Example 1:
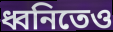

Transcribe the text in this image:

ধ্বনিতেও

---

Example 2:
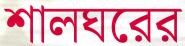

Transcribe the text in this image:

শালঘরের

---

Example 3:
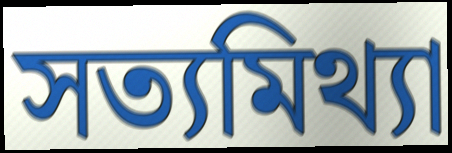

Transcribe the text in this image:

সত্যমিথ্যা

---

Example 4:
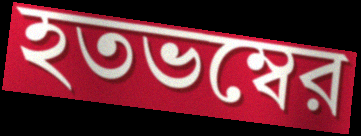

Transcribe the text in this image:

হতভম্বের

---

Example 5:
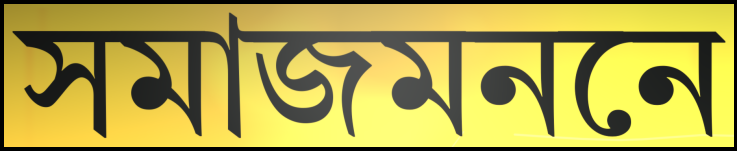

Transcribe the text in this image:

সমাজমননে